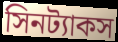
সিনট্যাকস